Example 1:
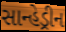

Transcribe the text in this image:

સાન્હેડ્રીન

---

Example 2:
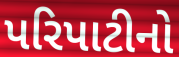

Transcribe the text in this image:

પરિપાટીનો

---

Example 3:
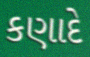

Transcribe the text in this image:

કણાદે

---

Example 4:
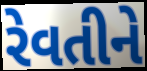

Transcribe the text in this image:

રેવતીને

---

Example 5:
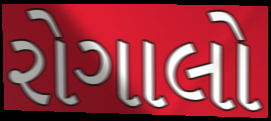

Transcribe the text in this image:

રોગાલો